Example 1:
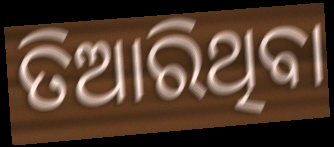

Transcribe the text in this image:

ତିଆରିଥିବା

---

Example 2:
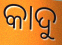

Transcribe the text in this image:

କାଦୁ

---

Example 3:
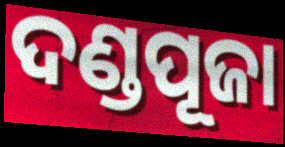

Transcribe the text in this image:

ଦଣ୍ଡପୂଜା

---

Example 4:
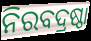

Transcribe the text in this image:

ନିରବଦ୍ରଷ୍ଠା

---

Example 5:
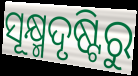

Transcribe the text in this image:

ସୂକ୍ଷ୍ମଦୃଷ୍ଟିରୁ